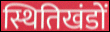
स्थितिखंडों